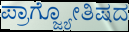
ಪ್ರಾಗ್ಜ್ಯೋತಿಷದ